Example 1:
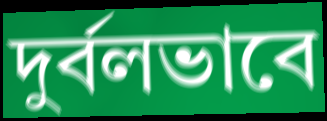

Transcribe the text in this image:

দুর্বলভাবে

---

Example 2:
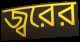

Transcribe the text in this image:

জ্বরের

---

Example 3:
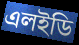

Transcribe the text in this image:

এলইডি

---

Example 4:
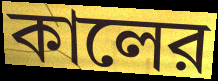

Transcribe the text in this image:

কালের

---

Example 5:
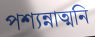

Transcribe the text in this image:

পশ্যন্নাত্মনি